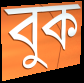
বুক